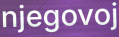
njegovoj